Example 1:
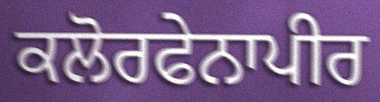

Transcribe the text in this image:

ਕਲੋਰਫੇਨਾਪੀਰ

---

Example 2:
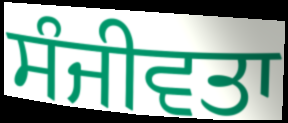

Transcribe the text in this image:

ਸੰਜੀਵਤਾ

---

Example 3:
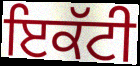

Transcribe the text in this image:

ਇਕੱਟੀ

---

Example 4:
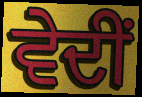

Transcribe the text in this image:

ਵੇਦੀਂ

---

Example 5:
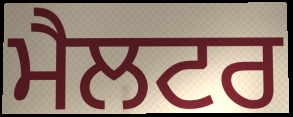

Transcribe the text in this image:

ਮੈਲਟਰ